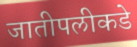
जातीपलीकडे